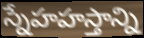
స్నేహహస్తాన్ని